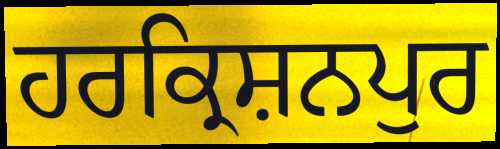
ਹਰਕ੍ਰਿਸ਼ਨਪੁਰ